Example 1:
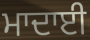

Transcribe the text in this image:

ਮਾਦਾਈ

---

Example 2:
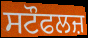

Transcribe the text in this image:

ਸਟੌਫਲਜ਼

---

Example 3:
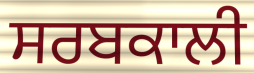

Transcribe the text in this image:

ਸਰਬਕਾਲੀ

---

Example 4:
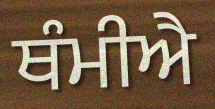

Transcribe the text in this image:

ਥੰਮੀਐ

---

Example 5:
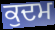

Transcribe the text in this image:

ਕੁਦਮ